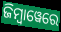
ଜିମ୍ୱାୱେରେ